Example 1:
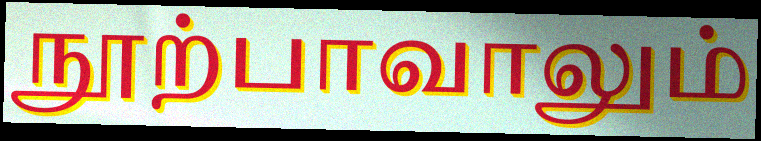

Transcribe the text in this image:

நூற்பாவாலும்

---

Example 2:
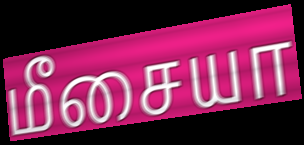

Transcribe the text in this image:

மீசையா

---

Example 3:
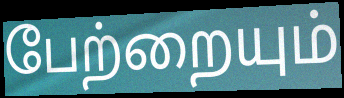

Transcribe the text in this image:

பேற்றையும்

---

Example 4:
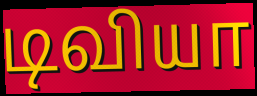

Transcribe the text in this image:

டிவியா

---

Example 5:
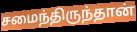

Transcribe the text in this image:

சமைந்திருந்தான்